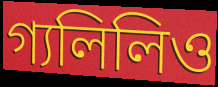
গ্যলিলিও